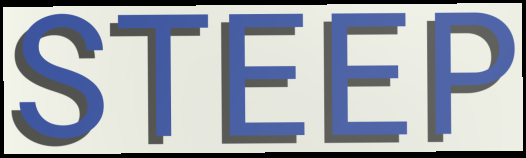
STEEP